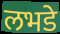
लभडे